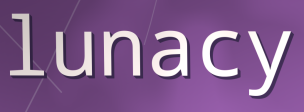
lunacy